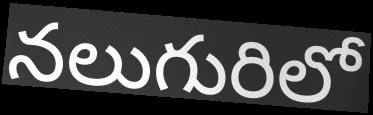
నలుగురిలో